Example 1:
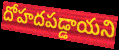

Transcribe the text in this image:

దోహదపడ్డాయని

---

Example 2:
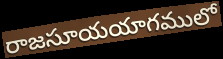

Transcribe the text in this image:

రాజసూయయాగములో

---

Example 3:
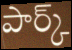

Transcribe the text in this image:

పార్క్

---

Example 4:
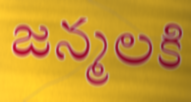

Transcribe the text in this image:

జన్మలకి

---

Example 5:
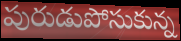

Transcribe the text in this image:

పురుడుపోసుకున్న